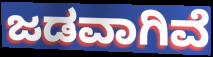
ಜಡವಾಗಿವೆ